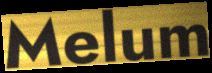
Melum